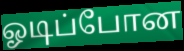
ஓடிப்போன